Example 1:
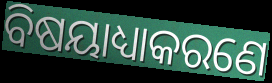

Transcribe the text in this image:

ବିଷୟାଧ୍ୟାକରଣେ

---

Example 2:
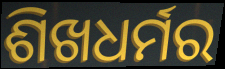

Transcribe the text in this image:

ଶିଖଧର୍ମର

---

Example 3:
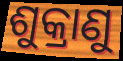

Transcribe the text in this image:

ଶୁକ୍ରାଣୁ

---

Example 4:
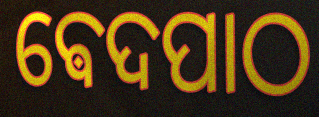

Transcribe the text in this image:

ଵେଦପାଠ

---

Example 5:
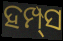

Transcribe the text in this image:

ହମ୍ପ୍‌ସ